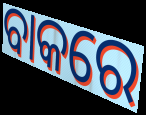
ବାକରେ